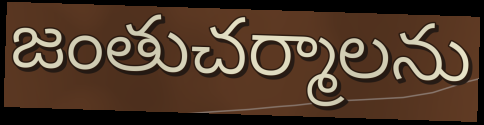
జంతుచర్మాలను